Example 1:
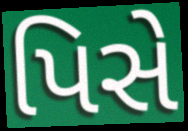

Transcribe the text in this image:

પિસે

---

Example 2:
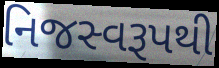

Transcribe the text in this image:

નિજસ્વરૂપથી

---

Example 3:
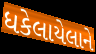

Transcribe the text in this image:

ધકેલાયેલાને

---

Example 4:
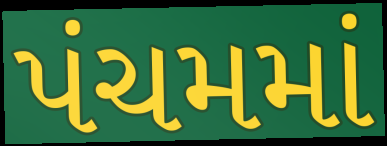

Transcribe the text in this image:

પંચમમાં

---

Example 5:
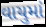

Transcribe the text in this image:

વાયુમાં